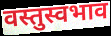
वस्तुस्वभाव